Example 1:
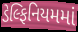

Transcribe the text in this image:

ડેલ્ફિનિયમમાં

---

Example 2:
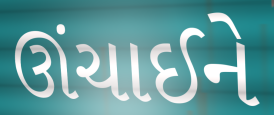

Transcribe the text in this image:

ઊંચાઈને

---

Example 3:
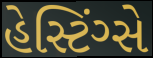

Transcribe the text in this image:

હેસ્ટિંગ્સે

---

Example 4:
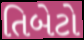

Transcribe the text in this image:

તિબેટો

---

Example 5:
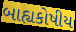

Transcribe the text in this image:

બાહ્યકોષીય